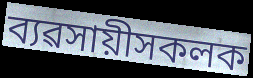
ব্যৱসায়ীসকলক